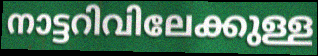
നാട്ടറിവിലേക്കുള്ള